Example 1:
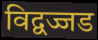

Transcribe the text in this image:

विद्वज्जड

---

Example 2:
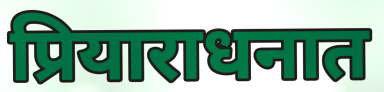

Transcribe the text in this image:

प्रियाराधनात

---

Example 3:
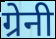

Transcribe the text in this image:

ग्रेनी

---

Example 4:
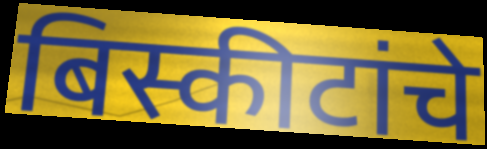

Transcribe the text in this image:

बिस्कीटांचे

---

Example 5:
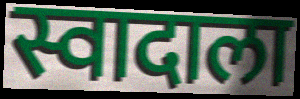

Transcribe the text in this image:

स्वादाला